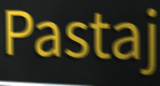
Pastaj